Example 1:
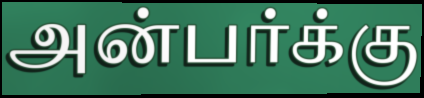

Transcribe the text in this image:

அன்பர்க்கு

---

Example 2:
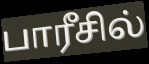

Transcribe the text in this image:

பாரீசில்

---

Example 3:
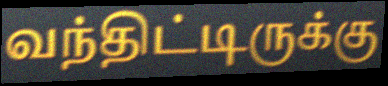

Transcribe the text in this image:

வந்திட்டிருக்கு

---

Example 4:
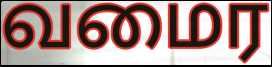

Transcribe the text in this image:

வமைர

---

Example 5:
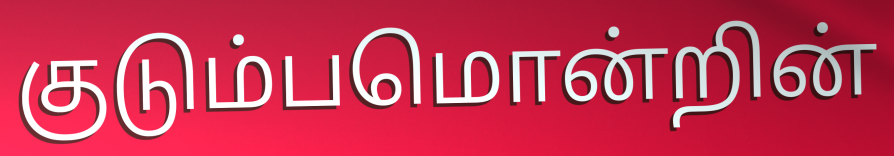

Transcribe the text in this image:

குடும்பமொன்றின்